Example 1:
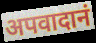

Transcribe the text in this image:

अपवादानं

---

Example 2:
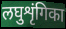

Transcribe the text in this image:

लघुशृंगिका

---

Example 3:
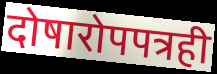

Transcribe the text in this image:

दोषारोपपत्रही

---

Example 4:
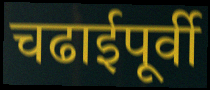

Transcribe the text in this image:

चढाईपूर्वी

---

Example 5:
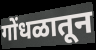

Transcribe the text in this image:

गोंधळातून